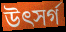
উৎসৰ্গ